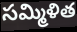
సమ్మిళిత